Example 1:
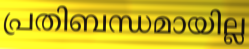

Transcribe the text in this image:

പ്രതിബന്ധമായില്ല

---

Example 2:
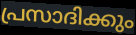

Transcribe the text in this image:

പ്രസാദിക്കും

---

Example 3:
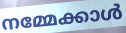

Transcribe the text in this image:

നമ്മേക്കാൾ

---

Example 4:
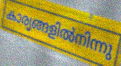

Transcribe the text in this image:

കാര്യങ്ങളിൽനിന്നു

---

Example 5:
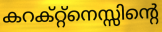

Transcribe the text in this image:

കറക്റ്റ്നെസ്സിന്റെ